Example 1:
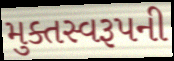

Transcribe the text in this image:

મુક્તસ્વરૂપની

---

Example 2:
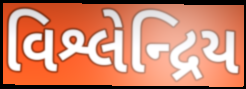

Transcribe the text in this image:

વિશ્લેન્દ્રિય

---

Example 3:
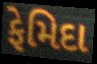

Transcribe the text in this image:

ફેમિદા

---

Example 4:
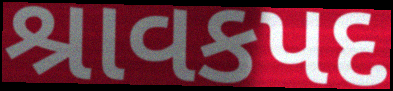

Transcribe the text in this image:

શ્રાવકપદ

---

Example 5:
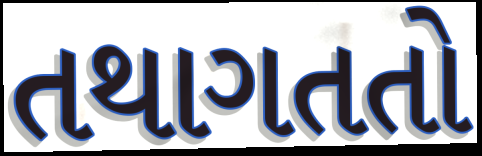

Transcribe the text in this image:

તથાગતતો